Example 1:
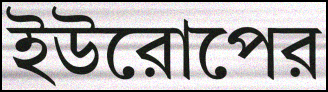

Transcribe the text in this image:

ইউরোপের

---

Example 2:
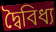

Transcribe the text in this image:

দ্বৈবিধ্য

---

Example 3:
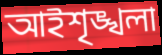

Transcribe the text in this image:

আইশৃঙ্খলা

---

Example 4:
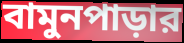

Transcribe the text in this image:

বামুনপাড়ার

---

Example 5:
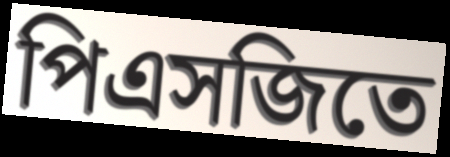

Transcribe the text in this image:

পিএসজিতে